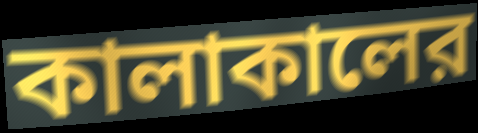
কালাকালের